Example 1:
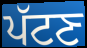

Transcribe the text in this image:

ਪੱਟਣ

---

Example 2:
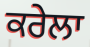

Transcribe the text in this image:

ਕਰੇਲਾ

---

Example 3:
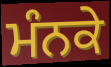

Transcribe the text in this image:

ਮੰਨਕੇ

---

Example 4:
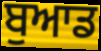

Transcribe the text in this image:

ਬੁਆਡ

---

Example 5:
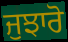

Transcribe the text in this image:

ਜੁਝਾਰੋ